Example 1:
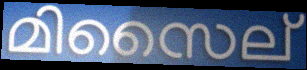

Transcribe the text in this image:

മിസൈല്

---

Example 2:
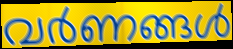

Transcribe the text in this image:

വർണങ്ങൾ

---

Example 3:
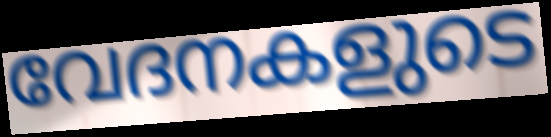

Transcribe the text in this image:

വേദനകളുടെ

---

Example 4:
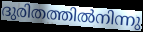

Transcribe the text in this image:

ദുരിതത്തിൽനിന്നു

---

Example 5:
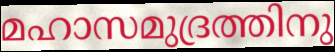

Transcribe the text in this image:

മഹാസമുദ്രത്തിനു